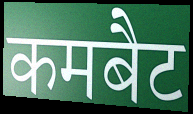
कमबैट